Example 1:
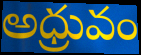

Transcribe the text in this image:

అధ్రువం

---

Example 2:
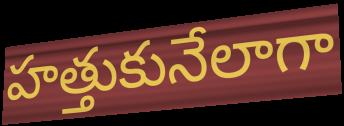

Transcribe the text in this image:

హత్తుకునేలాగా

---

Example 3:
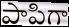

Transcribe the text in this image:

పాపిగా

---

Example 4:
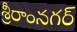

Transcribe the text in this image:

శ్రీరాంనగర్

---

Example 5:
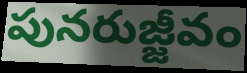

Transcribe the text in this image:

పునరుజ్జీవం